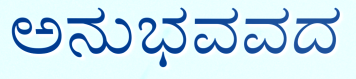
ಅನುಭವವದ